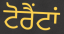
ਟੋਰੈਂਟਾਂ